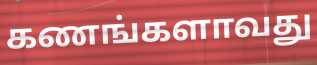
கணங்களாவது